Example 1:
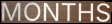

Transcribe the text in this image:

MONTHS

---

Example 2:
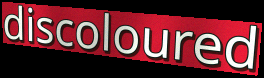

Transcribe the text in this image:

discoloured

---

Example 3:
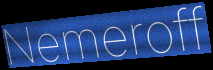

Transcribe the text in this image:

Nemeroff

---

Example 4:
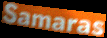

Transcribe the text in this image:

Samaras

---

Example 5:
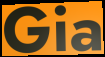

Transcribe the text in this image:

Gia